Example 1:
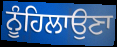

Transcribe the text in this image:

ਨੂੰਹਿਲਾਉਣਾ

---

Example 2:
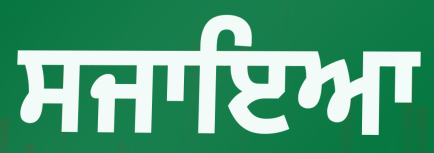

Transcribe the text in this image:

ਸਜਾਇਆ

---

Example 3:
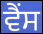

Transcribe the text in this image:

ਵੈਂਸ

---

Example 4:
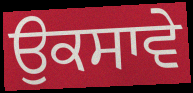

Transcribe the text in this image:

ਉਕਸਾਵੇ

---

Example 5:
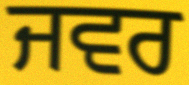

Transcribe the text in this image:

ਜਵਰ